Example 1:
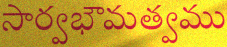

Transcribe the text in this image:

సార్వభౌమత్వము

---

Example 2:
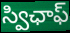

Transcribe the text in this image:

స్విఛాఫ్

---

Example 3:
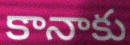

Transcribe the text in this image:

కానాకు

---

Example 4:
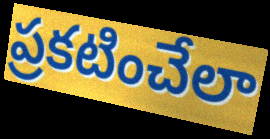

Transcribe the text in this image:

ప్రకటించేలా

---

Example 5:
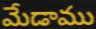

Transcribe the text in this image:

మేడాము